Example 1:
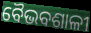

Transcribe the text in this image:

ବୈଭବଶାଳୀ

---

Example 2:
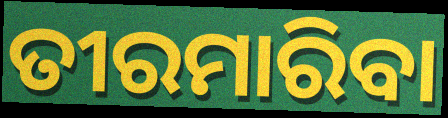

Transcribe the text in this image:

ତୀରମାରିବା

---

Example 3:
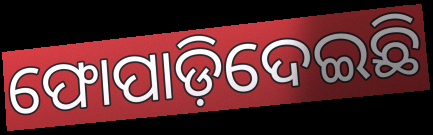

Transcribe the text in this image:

ଫୋପାଡ଼ିଦେଇଛି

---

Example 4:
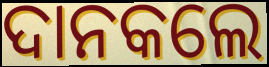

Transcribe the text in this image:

ଦାନକଲେ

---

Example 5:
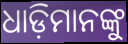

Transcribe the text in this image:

ଧାଡ଼ିମାନଙ୍କୁ